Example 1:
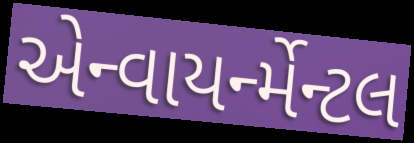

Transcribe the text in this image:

એન્વાયર્ન્મેન્ટલ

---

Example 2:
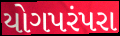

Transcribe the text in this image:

યોગપરંપરા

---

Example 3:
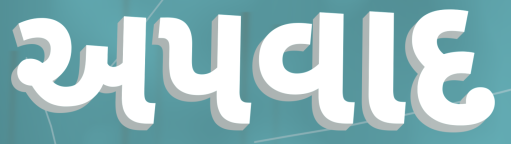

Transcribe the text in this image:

અપવાદ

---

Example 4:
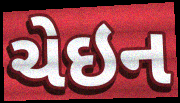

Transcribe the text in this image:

ચેઇન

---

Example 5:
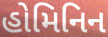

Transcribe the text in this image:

હોમિનિન